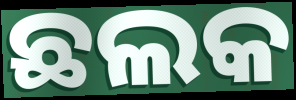
ଛଲକ